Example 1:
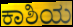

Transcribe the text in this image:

ಕಾಶಿಯ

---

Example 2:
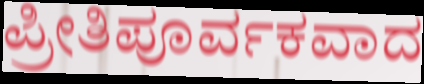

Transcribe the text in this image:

ಪ್ರೀತಿಪೂರ್ವಕವಾದ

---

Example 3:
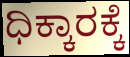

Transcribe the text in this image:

ಧಿಕ್ಕಾರಕ್ಕೆ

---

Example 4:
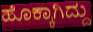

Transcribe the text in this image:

ಹೊಕ್ಕಾಗಿದ್ದು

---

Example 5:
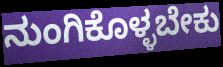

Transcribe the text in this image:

ನುಂಗಿಕೊಳ್ಳಬೇಕು